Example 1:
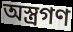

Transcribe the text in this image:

অস্ত্রগণ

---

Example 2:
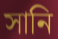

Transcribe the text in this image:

সানি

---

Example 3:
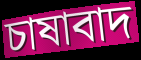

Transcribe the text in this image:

চাষাবাদ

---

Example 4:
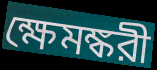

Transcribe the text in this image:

ক্ষেমঙ্করী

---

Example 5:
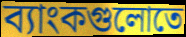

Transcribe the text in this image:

ব্যাংকগুলোতে